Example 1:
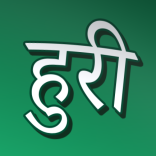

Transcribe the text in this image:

हुरी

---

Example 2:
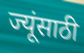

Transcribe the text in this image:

ज्यूंसाठी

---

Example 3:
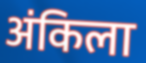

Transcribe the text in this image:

अंकिला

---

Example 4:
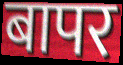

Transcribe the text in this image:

बापर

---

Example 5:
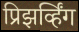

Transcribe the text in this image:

प्रिझर्व्हिंग